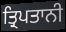
ਤ੍ਰਿਪਤਾਨੀ